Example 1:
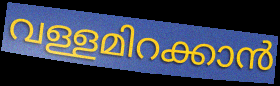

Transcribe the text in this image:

വള്ളമിറക്കാൻ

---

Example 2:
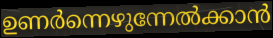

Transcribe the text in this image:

ഉണർന്നെഴുന്നേൽക്കാൻ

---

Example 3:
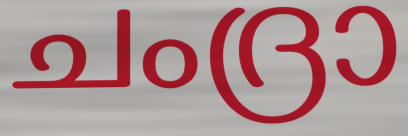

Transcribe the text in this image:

ചംദ്രാ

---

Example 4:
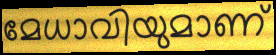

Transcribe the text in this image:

മേധാവിയുമാണ്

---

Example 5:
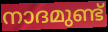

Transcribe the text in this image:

നാദമുണ്ട്